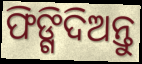
ଫିଙ୍ଗିଦିଅନ୍ତୁ